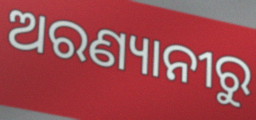
ଅରଣ୍ୟାନୀରୁ